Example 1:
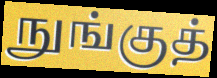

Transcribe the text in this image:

நுங்குத்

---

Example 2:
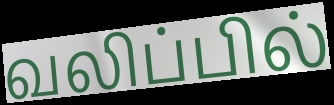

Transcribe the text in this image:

வலிப்பில்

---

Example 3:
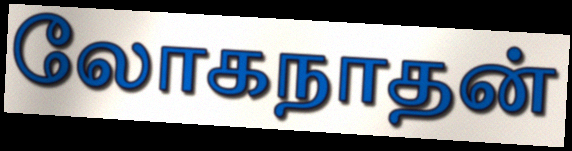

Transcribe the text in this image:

லோகநாதன்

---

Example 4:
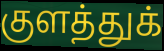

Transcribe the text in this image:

குளத்துக்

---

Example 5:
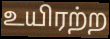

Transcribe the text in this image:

உயிரற்ற